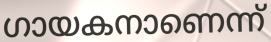
ഗായകനാണെന്ന്